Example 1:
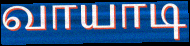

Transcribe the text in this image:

வாயாடி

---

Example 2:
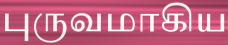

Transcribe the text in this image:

புருவமாகிய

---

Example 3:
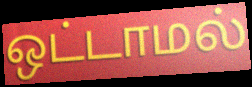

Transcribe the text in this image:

ஒட்டாமல்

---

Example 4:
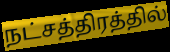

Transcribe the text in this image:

நட்சத்திரத்தில்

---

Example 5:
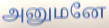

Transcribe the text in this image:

அனுமனே